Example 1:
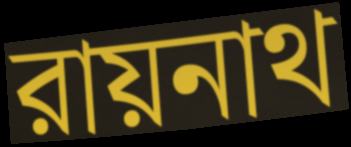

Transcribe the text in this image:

রায়নাথ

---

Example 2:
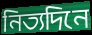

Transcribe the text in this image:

নিত্যদিনে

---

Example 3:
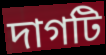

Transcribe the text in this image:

দাগটি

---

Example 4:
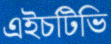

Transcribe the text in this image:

এইচটিভি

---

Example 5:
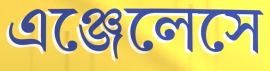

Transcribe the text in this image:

এঞ্জেলেসে